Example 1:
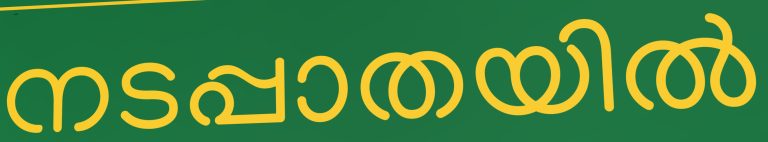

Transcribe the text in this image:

നടപ്പാതയിൽ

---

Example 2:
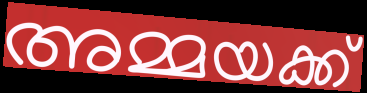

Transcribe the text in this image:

അമ്മയക്ക്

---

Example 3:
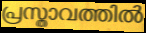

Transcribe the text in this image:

പ്രസ്താവത്തിൽ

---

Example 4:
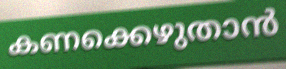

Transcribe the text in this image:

കണക്കെഴുതാൻ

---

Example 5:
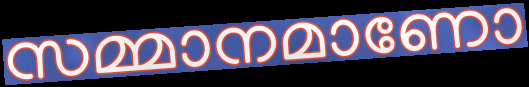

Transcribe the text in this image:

സമ്മാനമാണോ